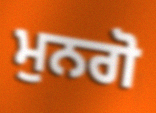
ਮੁਨਗੋ